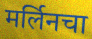
मर्लिनचा